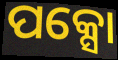
ପକ୍ସୋ